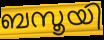
ബസൂയി